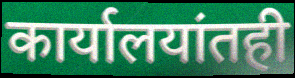
कार्यालयांतही